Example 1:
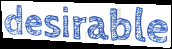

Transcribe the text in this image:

desirable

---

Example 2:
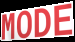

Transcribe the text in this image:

MODE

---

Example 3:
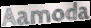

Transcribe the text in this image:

Aamoda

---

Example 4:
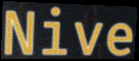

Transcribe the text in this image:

Nive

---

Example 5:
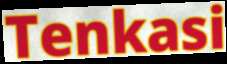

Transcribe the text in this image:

Tenkasi